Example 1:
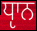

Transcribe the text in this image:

ਧੵਾਨ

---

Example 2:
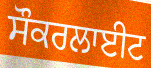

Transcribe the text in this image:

ਸੌਕਰਲਾਈਟ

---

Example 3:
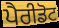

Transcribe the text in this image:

ਪੈਰੀਡੋਟ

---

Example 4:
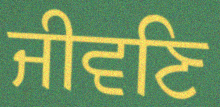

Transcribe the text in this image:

ਜੀਵਣਿ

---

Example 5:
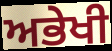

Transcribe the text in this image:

ਅਭੇਖੀ